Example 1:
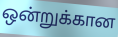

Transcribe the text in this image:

ஒன்றுக்கான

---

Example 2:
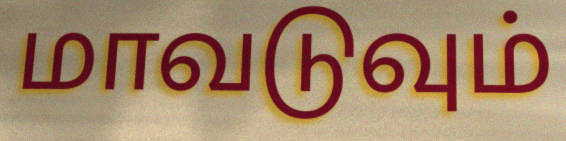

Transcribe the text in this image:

மாவடுவும்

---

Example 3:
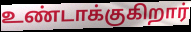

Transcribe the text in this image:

உண்டாக்குகிறார்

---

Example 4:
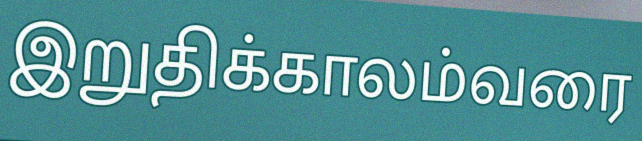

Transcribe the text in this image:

இறுதிக்காலம்வரை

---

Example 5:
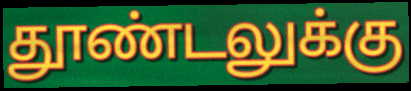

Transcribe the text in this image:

தூண்டலுக்கு